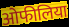
ओफीलिया